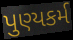
પુણ્યકર્મ